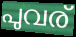
പുവര്